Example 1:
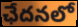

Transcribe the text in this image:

ఛేదనలో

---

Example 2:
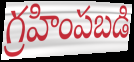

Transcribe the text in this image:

గ్రహింపబడి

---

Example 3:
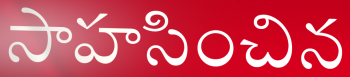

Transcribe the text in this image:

సాహసించిన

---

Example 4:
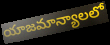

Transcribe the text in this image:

యాజమాన్యాలలో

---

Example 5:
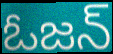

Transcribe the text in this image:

ఓజన్